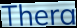
Thera